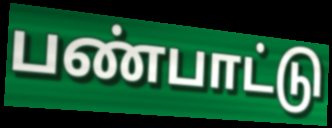
பண்பாட்டு